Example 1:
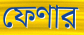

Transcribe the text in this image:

ফেণার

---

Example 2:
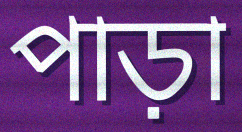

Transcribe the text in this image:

পাড়া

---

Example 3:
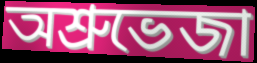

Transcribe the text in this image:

অশ্রুভেজা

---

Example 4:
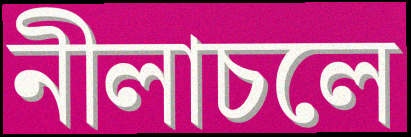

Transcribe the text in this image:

নীলাচলে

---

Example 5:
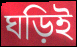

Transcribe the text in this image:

ঘড়িই